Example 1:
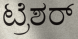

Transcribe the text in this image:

ಟ್ರೆಶರ್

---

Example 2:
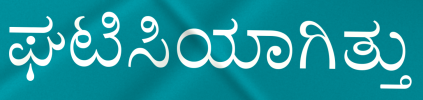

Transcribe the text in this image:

ಘಟಿಸಿಯಾಗಿತ್ತು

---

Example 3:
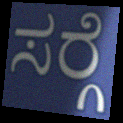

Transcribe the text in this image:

ಸರ್‍ಗೆ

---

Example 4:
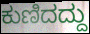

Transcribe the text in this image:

ಕುಣಿದದ್ದು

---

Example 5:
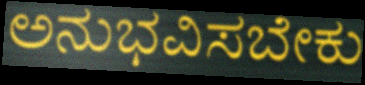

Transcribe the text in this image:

ಅನುಭವಿಸಬೇಕು